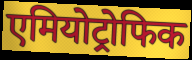
एमियोट्रोफिक